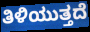
ತಿಳಿಯುತ್ತದೆ